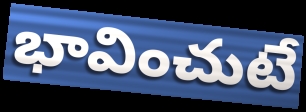
భావించుటే